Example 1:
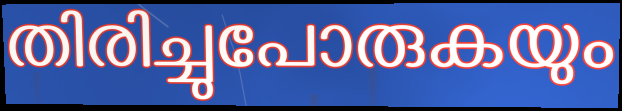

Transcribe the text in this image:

തിരിച്ചുപോരുകയും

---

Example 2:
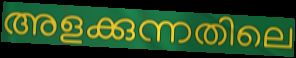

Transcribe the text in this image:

അളക്കുന്നതിലെ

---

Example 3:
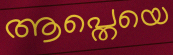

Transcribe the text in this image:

ആപ്തെയെ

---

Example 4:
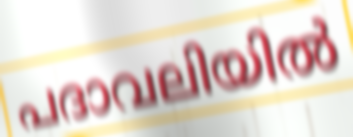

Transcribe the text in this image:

പദാവലിയിൽ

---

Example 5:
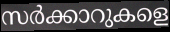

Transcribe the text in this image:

സർക്കാറുകളെ